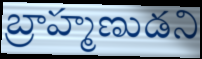
బ్రాహ్మణుడని